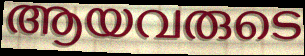
ആയവരുടെ